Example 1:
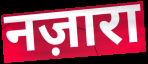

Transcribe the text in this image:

नज़ारा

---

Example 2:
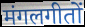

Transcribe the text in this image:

मंगलगीतों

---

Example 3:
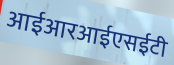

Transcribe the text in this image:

आईआरआईएसईटी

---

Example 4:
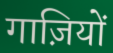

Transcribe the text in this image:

गाज़ियों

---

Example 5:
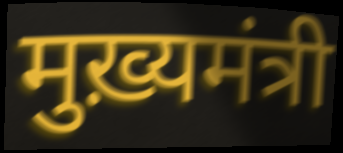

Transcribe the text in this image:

मुख़्यमंत्री